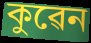
কুৱেন